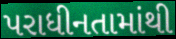
પરાધીનતામાંથી